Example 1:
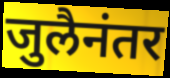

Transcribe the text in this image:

जुलैनंतर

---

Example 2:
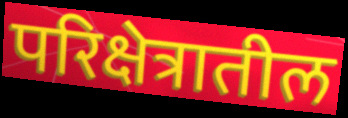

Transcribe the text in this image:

परिक्षेत्रातील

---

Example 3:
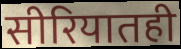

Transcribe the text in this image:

सीरियातही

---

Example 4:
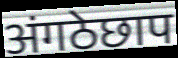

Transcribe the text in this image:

अंगठेछाप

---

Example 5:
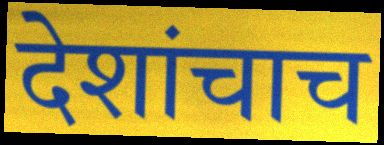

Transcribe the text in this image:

देशांचाच